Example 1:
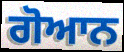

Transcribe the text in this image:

ਗੋਆਨ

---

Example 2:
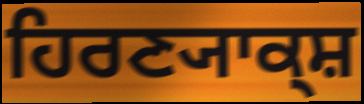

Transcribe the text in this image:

ਹਿਰਣ੍ਯਾਕ੍ਸ਼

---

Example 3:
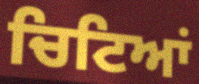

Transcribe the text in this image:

ਚਿਟਿਆਂ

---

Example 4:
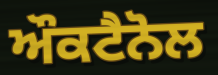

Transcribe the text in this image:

ਔਕਟੈਨੋਲ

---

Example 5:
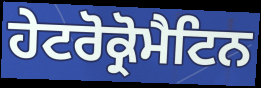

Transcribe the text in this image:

ਹੇਟਰੋਕ੍ਰੋਮੈਟਿਨ